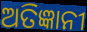
ଅତିଜ୍ଞାନୀ